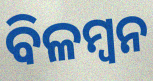
ବିଳମ୍ବନ